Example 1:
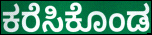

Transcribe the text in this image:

ಕರೆಸಿಕೊಂಡ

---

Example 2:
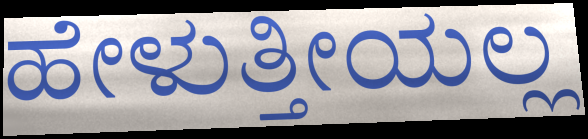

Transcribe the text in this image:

ಹೇಳುತ್ತೀಯಲ್ಲ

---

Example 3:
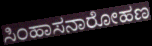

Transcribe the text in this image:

ಸಿಂಹಾಸನಾರೋಹಣ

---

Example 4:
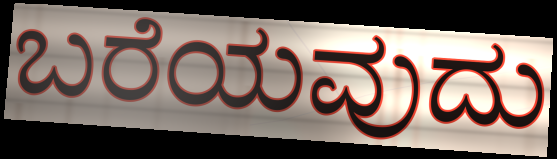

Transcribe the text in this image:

ಬರೆಯವುದು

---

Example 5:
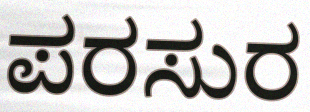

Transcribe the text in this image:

ಪರಸುರ